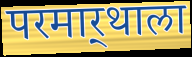
परमार्थाला